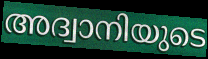
അദ്വാനിയുടെ